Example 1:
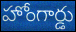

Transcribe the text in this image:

హోంగార్డు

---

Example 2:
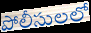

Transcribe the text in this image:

పోలీసులలో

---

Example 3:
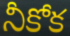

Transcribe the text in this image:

నీకోక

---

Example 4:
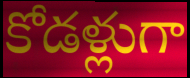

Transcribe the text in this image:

కోడళ్లుగా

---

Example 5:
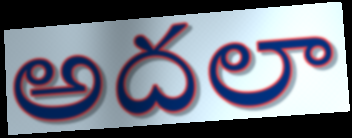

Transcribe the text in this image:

అదలా